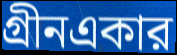
গ্রীনএকার